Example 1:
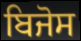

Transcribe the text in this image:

ਬਿਜੋਸ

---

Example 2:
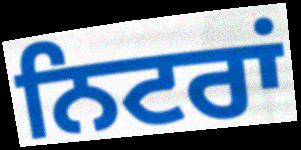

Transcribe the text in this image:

ਨਿਟਰਾਂ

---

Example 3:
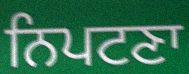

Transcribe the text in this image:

ਨਿਪਟਣਾ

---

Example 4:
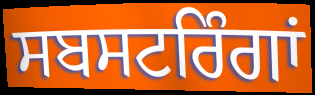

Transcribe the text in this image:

ਸਬਸਟਰਿੰਗਾਂ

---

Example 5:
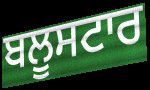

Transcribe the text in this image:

ਬਲੂਸਟਾਰ